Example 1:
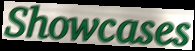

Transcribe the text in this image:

Showcases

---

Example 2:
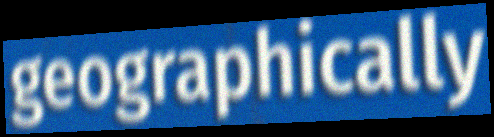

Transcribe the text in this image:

geographically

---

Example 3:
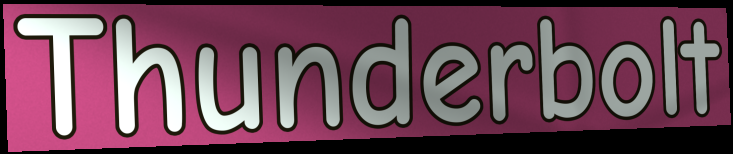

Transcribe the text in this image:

Thunderbolt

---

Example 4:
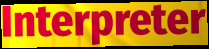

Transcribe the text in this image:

Interpreter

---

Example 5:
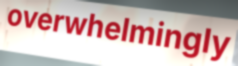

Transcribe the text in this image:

overwhelmingly